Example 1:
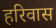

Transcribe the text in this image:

हरिवास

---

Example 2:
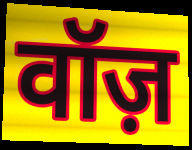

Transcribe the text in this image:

वॉज़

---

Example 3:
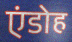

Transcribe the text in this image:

एंडोह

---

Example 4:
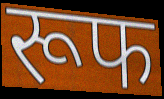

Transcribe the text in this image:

रूफ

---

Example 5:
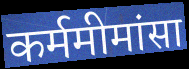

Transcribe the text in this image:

कर्ममीमांसा